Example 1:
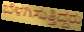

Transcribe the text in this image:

ಬೆಳಗಿಸುತ್ತಿದ್ದರು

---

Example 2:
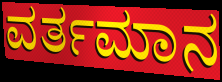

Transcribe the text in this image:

ವರ್ತಮಾನ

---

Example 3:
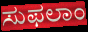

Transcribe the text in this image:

ಸುಫಲಾಂ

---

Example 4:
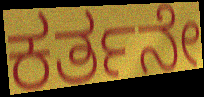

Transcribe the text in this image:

ಕರ್ತನೇ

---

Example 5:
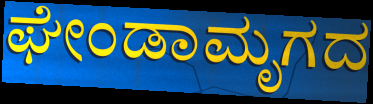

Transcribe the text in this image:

ಘೇಂಡಾಮೃಗದ